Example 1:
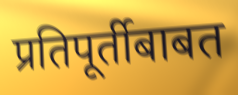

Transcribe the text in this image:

प्रतिपूर्तीबाबत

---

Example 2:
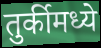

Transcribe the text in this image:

तुर्कीमध्ये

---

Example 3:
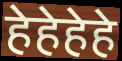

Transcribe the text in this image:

हेहेहेहे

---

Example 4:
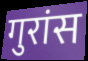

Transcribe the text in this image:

गुरांस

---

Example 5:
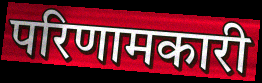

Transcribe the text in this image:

परिणामकारी